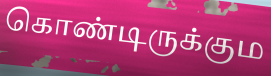
கொண்டிருக்கும